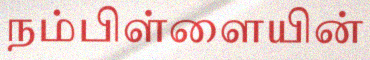
நம்பிள்ளையின்